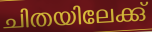
ചിതയിലേക്കു്